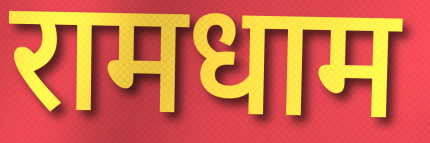
रामधाम